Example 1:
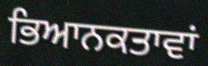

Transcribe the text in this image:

ਭਿਆਨਕਤਾਵਾਂ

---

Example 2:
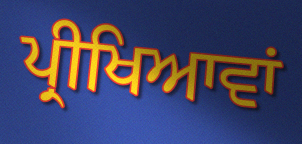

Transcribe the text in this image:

ਪ੍ਰੀਖਿਆਵਾਂ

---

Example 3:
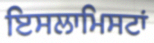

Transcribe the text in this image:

ਇਸਲਾਮਿਸਟਾਂ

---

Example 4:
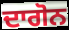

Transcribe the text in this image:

ਦਾਗੋਨ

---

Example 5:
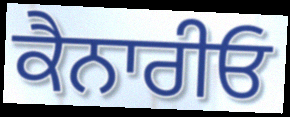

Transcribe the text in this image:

ਕੈਨਾਰੀਓ